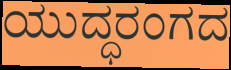
ಯುದ್ಧರಂಗದ